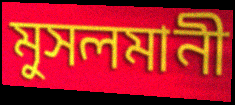
মুসলমানী